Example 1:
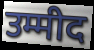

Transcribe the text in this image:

उम्मीद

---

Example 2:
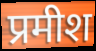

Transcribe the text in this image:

प्रमीश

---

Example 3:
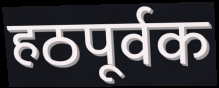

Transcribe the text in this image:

हठपूर्वक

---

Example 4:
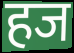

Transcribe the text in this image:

हज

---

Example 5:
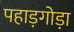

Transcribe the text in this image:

पहाड़गोड़ा